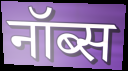
नॉब्स